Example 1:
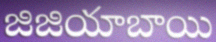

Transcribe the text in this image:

జిజియాబాయి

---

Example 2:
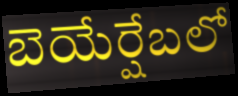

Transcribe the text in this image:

బెయేర్షేబలో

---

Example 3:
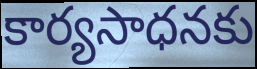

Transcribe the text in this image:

కార్యసాధనకు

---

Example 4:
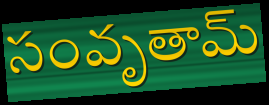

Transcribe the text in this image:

సంవృతామ్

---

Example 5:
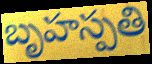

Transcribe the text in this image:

బృహస్పతి